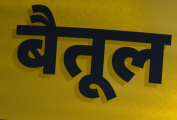
बैतूल